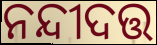
ନନ୍ଦୀଦତ୍ତ